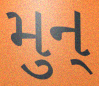
મુન્